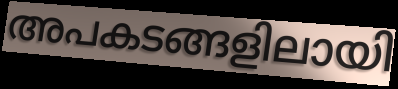
അപകടങ്ങളിലായി